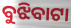
ବୁଝିବାଟା